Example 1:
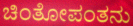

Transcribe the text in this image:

ಚಿಂತೋಪಂತನು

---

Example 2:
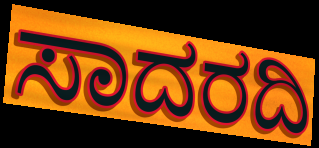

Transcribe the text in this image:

ಸಾದರದಿ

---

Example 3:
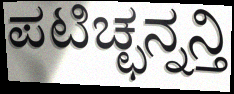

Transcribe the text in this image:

ಪಟಿಚ್ಛನ್ನನ್ತಿ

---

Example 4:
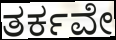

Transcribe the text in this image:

ತರ್ಕವೇ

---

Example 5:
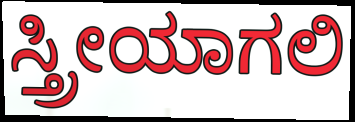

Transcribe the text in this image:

ಸ್ತ್ರೀಯಾಗಲಿ